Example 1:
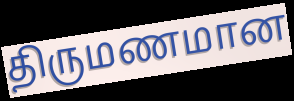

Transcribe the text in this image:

திருமணமான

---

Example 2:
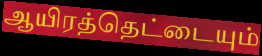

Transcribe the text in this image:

ஆயிரத்தெட்டையும்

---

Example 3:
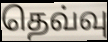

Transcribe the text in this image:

தெவ்வு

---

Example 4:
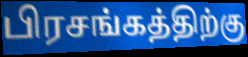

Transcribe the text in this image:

பிரசங்கத்திற்கு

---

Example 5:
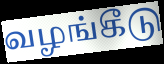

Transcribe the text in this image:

வழங்கீடு